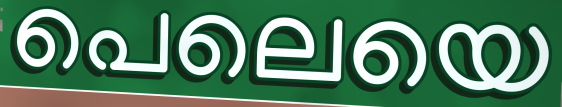
പെലെയെ